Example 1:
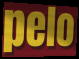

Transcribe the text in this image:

pelo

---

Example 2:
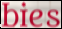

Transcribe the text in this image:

bies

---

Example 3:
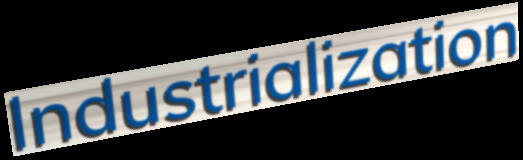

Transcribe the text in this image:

Industrialization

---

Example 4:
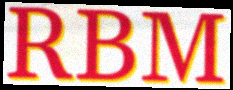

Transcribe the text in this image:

RBM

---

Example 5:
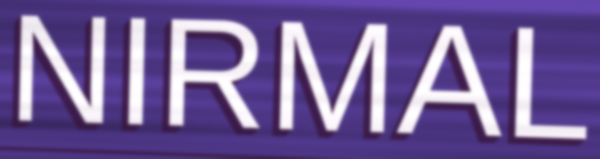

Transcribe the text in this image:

NIRMAL